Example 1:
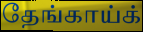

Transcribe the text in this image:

தேங்காய்க்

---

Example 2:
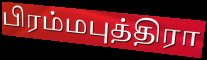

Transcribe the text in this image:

பிரம்மபுத்திரா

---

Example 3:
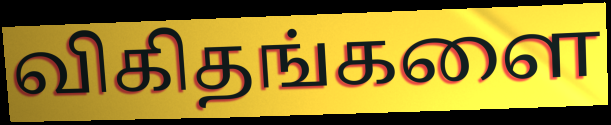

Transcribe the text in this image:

விகிதங்களை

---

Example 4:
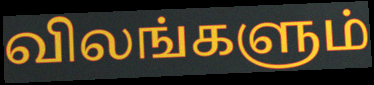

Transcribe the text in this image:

விலங்களும்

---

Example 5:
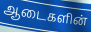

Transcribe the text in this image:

ஆடைகளின்